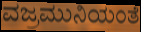
ವಜ್ರಮುನಿಯಂತೆ